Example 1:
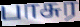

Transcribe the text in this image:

பாசுர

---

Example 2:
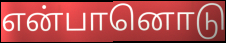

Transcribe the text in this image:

என்பானொடு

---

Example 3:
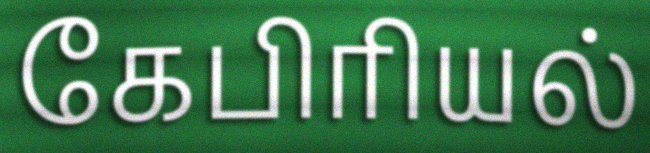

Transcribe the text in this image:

கேபிரியல்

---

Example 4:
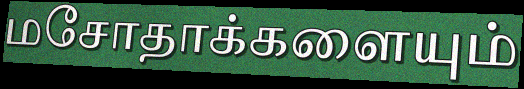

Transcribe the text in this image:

மசோதாக்களையும்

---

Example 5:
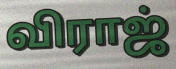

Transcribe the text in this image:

விராஜ்